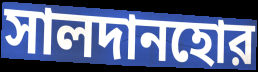
সালদানহোর